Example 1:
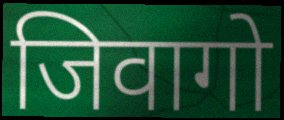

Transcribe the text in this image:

जिवागो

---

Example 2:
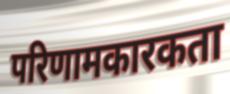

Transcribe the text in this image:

परिणामकारकता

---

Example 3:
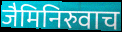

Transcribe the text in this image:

जैमिनिरुवाच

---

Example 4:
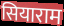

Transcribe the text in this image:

सियाराम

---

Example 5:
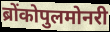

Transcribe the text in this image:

ब्रोंकोपुलमोनरी